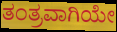
ತಂತ್ರವಾಗಿಯೇ